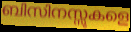
ബിസിനസ്സുകളെ